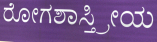
ರೋಗಶಾಸ್ತ್ರೀಯ